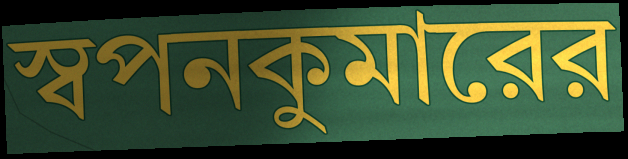
স্বপনকুমারের